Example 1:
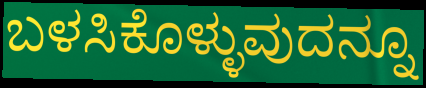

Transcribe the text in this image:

ಬಳಸಿಕೊಳ್ಳುವುದನ್ನೂ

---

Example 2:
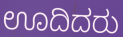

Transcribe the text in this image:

ಊದಿದರು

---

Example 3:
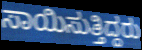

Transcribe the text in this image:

ಸಾಯಿಸುತ್ತಿದ್ದರು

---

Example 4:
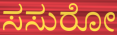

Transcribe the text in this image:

ಸಸುರೋ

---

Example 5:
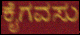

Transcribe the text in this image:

ಕೈಗವಸು